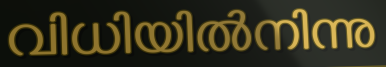
വിധിയിൽനിന്നു